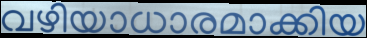
വഴിയാധാരമാക്കിയ